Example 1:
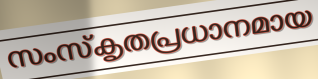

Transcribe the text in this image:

സംസ്‌കൃതപ്രധാനമായ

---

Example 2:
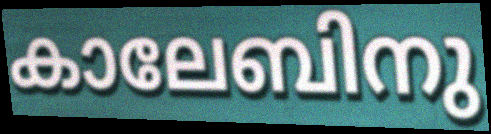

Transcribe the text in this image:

കാലേബിനു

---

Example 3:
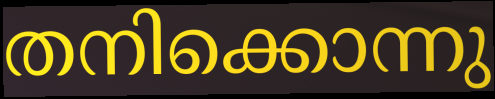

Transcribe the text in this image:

തനിക്കൊന്നു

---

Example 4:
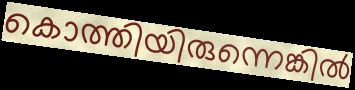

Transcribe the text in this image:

കൊത്തിയിരുന്നെങ്കിൽ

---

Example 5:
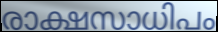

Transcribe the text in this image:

രാക്ഷസാധിപം